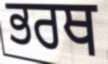
ਭਰਥ